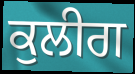
ਕੁਲੀਗ